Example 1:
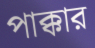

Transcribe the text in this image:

পাক্কার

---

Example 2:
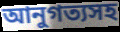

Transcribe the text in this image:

আনুগত্যসহ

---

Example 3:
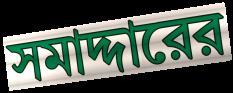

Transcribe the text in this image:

সমাদ্দারের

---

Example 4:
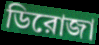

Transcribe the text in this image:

ডিরোজা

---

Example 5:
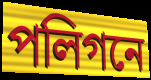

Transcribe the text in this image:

পলিগনে